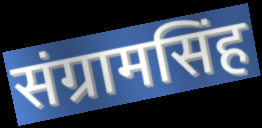
संग्रामसिंह